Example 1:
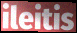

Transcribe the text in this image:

ileitis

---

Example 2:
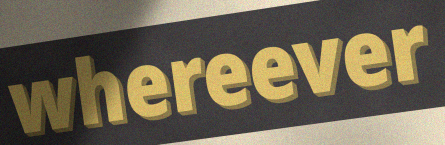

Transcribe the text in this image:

whereever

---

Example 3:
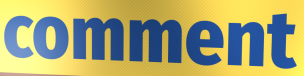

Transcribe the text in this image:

comment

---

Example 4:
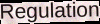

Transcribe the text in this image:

Regulation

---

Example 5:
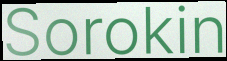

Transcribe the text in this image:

Sorokin